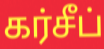
கர்சீப்